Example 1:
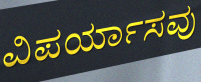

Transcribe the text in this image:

ವಿಪರ್ಯಾಸವು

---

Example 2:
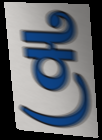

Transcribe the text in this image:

ಕ್ರೆ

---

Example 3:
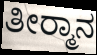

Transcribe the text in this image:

ತೀರ‍್ಮಾನ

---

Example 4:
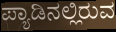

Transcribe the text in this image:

ಪ್ಯಾಡಿನಲ್ಲಿರುವ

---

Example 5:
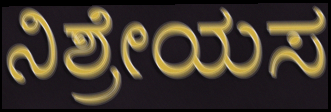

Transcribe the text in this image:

ನಿಶ್ರೇಯಸ